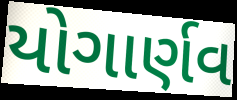
યોગાર્ણવ